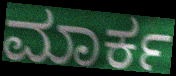
ಮಾರ್ಕ